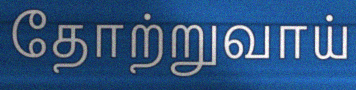
தோற்றுவாய்